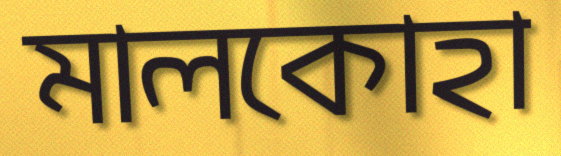
মালকোহা